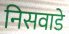
निसवाडे